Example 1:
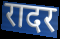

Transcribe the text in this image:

रादर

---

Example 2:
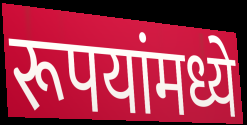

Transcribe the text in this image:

रूपयांमध्ये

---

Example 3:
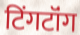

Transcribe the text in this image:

टिंगटॉंग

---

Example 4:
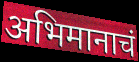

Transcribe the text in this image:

अभिमानाचं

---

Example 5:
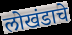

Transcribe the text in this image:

लोखंडाचे